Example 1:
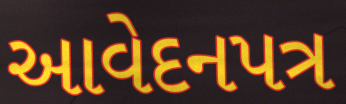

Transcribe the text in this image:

આવેદનપત્ર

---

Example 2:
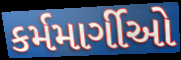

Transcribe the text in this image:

કર્મમાર્ગીઓ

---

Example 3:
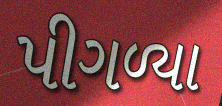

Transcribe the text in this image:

પીગળ્યા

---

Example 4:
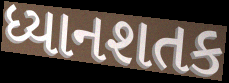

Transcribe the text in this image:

ધ્યાનશતક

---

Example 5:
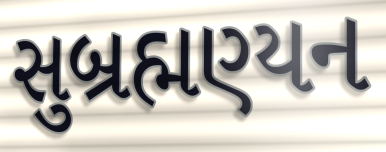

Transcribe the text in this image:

સુબ્રહ્મણ્યન